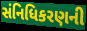
સંનિધિકરણની